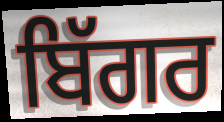
ਬਿੱਗਰ